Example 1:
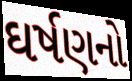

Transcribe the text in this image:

ઘર્ષણનો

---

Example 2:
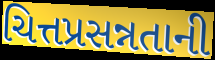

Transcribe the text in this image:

ચિત્તપ્રસન્નતાની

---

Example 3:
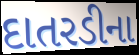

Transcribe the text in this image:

દાતરડીના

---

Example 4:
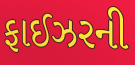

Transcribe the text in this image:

ફાઈઝરની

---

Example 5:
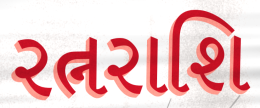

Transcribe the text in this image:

રત્નરાશિ